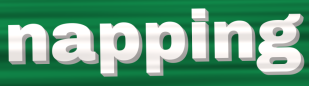
napping